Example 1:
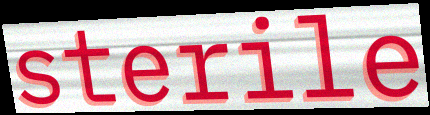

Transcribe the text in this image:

sterile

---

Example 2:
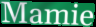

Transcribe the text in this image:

Mamie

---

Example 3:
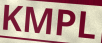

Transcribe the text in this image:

KMPL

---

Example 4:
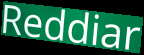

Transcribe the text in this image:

Reddiar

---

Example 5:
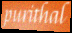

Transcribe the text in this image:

purithal